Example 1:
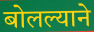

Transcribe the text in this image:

बोलल्याने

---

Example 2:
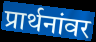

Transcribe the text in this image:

प्रार्थनांवर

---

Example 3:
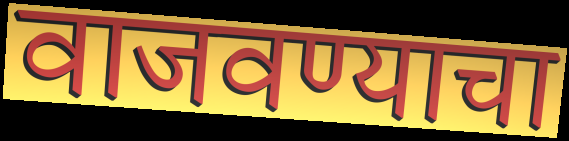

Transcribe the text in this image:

वाजवण्याचा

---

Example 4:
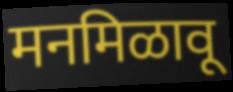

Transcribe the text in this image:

मनमिळावू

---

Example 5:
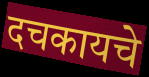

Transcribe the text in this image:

दचकायचे